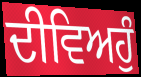
ਦੀਵਿਅਹੁੰ